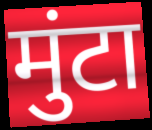
मुंटा